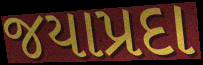
જયાપ્રદા